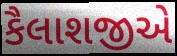
કૈલાશજીએ